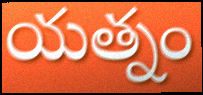
యత్నం